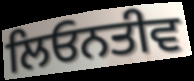
ਲਿਓਨਤੀਵ